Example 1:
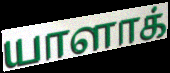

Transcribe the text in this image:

யாளாக்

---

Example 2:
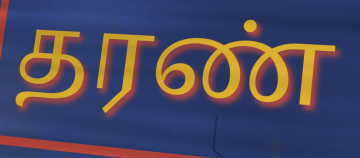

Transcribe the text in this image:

தரண்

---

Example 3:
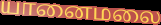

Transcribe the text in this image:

யானைமலை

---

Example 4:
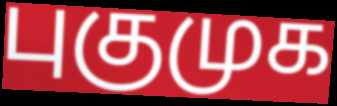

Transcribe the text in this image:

புகுமுக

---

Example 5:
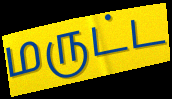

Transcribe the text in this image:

மருட்ட